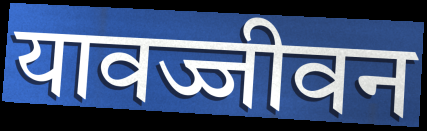
यावज्जीवन